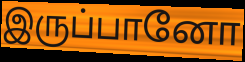
இருப்பானோ